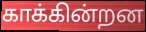
காக்கின்றன